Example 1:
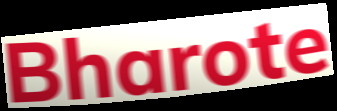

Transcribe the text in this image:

Bharote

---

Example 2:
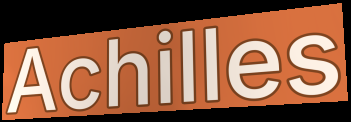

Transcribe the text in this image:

Achilles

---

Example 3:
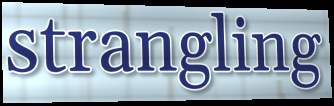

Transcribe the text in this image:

strangling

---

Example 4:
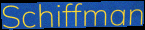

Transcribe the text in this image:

Schiffman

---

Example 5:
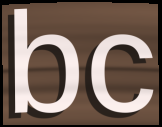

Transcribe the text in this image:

bc